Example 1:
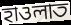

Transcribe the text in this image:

হাওলাত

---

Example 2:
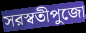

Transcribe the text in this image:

সরস্বতীপুজো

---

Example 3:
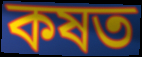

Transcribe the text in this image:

কষত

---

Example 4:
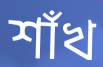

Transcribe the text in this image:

শাঁখ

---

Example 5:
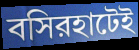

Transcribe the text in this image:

বসিরহাটেই